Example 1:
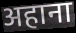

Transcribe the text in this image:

अहाना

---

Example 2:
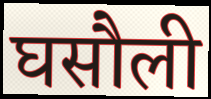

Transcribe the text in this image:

घसौली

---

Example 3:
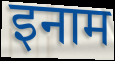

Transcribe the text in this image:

इनाम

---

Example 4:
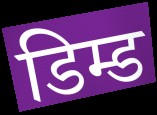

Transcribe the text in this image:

डिम्ड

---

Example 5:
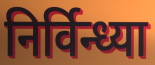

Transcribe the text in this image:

निर्विन्ध्या